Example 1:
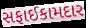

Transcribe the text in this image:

સફાઈકામદાર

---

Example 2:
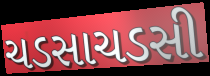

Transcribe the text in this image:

ચડસાચડસી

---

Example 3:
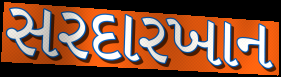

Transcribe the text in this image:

સરદારખાન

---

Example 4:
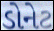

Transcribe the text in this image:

ડોનેટ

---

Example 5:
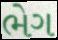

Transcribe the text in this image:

ભેગ